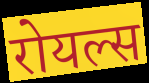
रोयल्स